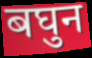
बघुन